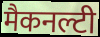
मैकनल्टी